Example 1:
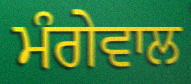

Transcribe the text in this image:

ਮੰਗੇਵਾਲ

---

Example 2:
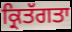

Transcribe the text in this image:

ਕ੍ਰਿਤੱਗਤਾ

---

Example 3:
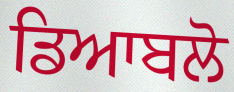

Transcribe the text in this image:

ਡਿਆਬਲੋ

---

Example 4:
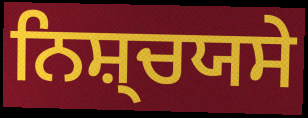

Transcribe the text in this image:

ਨਿਸ਼੍ਚਯਸੇ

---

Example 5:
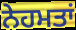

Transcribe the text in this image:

ਨੇਹਮਤਾਂ